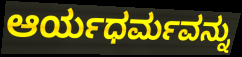
ಆರ್ಯಧರ್ಮವನ್ನು